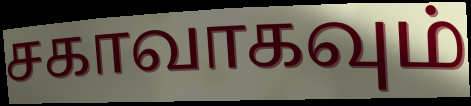
சகாவாகவும்